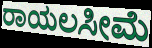
ರಾಯಲಸೀಮೆ